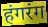
हंगरंग